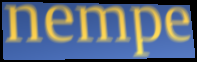
nempe